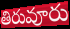
తిరువూరు